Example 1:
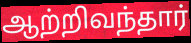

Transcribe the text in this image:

ஆற்றிவந்தார்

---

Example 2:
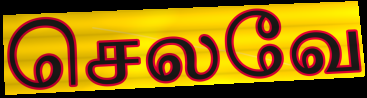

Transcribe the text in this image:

செலவே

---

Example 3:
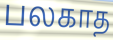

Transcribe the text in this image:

பலகாத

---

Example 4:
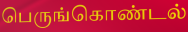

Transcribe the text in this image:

பெருங்கொண்டல்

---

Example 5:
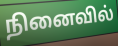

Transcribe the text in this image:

நினைவில்